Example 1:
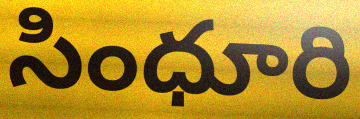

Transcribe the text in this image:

సింధూరి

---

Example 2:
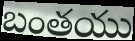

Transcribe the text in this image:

బంతయు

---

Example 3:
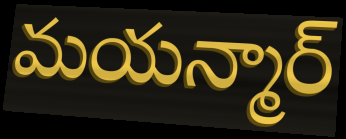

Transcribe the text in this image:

మయన్మార్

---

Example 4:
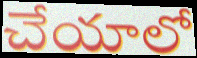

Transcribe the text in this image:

చేయాలో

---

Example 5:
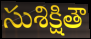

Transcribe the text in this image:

సుశిక్షితౌ